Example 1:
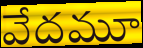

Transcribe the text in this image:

వేదమూ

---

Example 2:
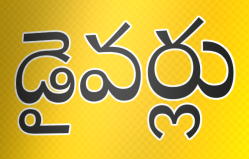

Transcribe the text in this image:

డైవర్లు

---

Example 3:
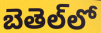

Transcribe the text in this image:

బెతెల్‌లో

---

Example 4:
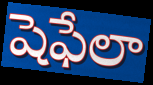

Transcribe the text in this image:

షెఫేలా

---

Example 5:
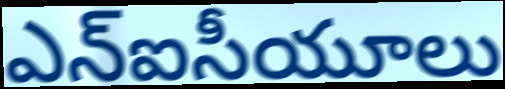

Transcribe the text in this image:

ఎన్ఐసీయూలు